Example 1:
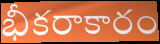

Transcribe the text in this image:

భీకరాకారం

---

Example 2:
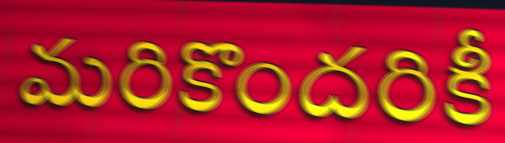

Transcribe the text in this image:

మరికొందరికీ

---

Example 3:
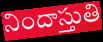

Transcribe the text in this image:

నిందాస్తుతి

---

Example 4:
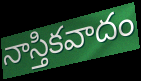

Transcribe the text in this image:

నాస్తికవాదం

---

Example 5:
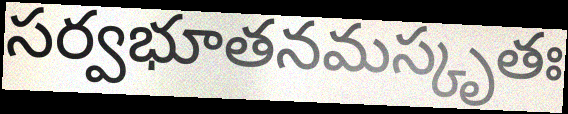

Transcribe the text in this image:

సర్వభూతనమస్కృతః